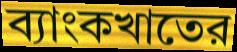
ব্যাংকখাতের